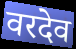
वरदेव